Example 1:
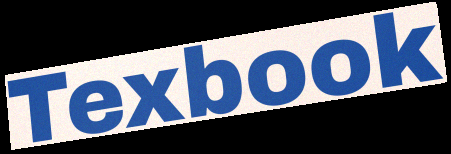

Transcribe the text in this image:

Texbook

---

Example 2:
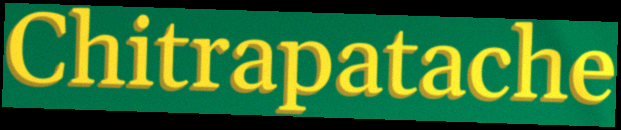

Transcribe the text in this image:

Chitrapatache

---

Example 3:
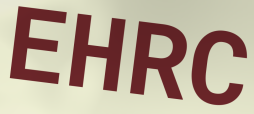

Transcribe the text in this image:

EHRC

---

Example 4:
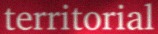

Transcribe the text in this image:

territorial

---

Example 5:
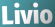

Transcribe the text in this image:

Livio